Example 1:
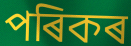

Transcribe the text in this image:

পৰিকৰ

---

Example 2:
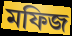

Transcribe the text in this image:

মফিজ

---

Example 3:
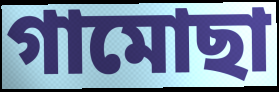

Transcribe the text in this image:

গামোছা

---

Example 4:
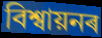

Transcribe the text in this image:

বিশ্বায়নৰ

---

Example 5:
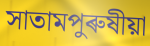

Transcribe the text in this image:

সাতামপুৰুষীয়া